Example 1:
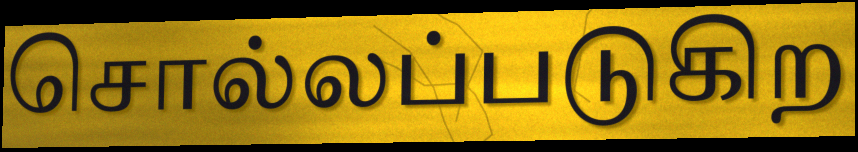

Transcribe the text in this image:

சொல்லப்படுகிற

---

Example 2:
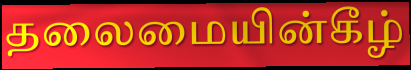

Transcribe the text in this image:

தலைமையின்கீழ்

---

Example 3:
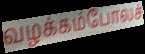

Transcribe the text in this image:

வழக்கம்போலச்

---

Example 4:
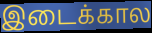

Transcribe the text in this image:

இடைக்கால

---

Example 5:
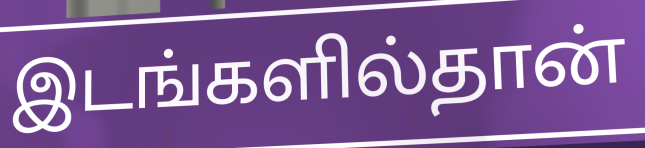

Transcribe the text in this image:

இடங்களில்தான்